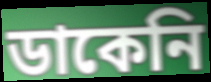
ডাকেনি